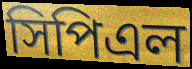
সিপিএল